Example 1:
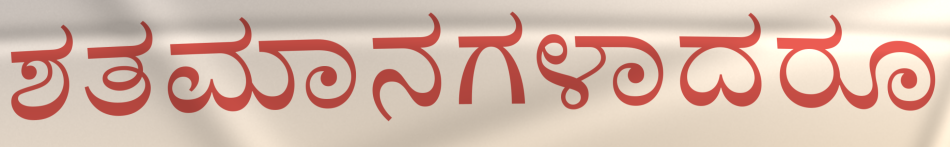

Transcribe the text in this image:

ಶತಮಾನಗಳಾದರೂ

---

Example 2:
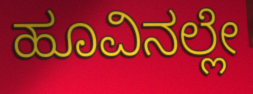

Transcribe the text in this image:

ಹೂವಿನಲ್ಲೇ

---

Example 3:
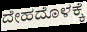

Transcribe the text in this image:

ದೇಹದೊಳಕ್ಕೆ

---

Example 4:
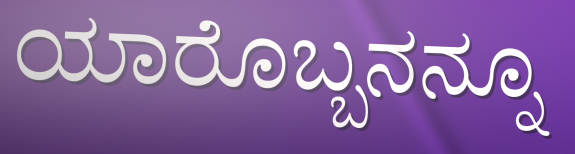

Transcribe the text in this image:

ಯಾರೊಬ್ಬನನ್ನೂ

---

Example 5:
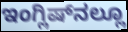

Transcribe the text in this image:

ಇಂಗ್ಲಿಷ್‌ನಲ್ಲೂ